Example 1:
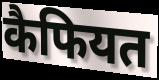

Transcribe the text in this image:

कैफियत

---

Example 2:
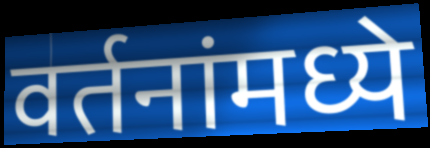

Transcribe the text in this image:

वर्तनांमध्ये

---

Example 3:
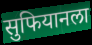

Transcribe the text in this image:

सुफियानला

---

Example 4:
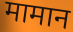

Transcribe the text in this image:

मामान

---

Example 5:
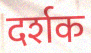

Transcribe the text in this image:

दर्शक